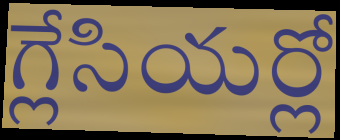
గ్లేసియర్లో